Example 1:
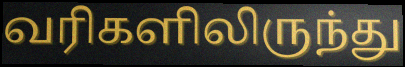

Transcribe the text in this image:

வரிகளிலிருந்து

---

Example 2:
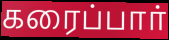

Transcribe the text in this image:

கரைப்பார்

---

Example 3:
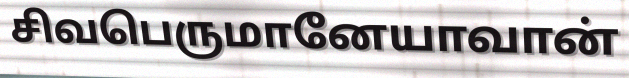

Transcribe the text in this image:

சிவபெருமானேயாவான்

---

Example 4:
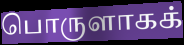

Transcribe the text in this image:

பொருளாகக்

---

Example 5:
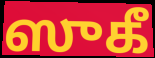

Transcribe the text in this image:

ஸுகீ